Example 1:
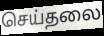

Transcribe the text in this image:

செய்தலை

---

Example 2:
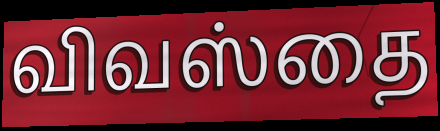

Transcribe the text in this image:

விவஸ்தை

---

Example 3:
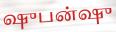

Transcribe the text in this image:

ஷுபன்ஷு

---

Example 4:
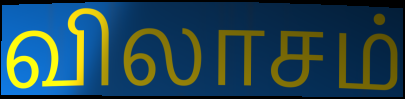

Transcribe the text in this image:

விலாசம்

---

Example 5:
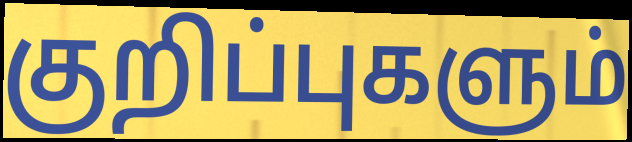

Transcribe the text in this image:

குறிப்புகளும்